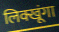
लिक्खूंगा